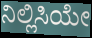
ನಿಲ್ಲಿಸಿಯೇ